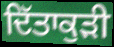
ਦਿੱਤਾਕੁੜੀ